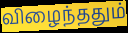
விழைந்ததும்